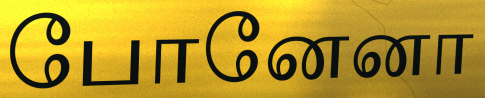
போனேனா